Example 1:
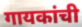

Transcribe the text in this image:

गायकांची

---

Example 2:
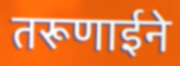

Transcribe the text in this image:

तरूणाईने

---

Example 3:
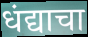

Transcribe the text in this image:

धंद्याचा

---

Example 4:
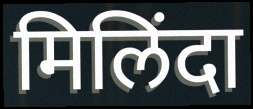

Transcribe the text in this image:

मिलिंदा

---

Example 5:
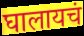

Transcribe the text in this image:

घालायचं